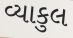
વ્યાકુલ